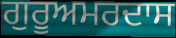
ਗੁਰੂਅਮਰਦਾਸ